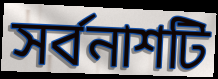
সর্বনাশটি